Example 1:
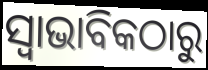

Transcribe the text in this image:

ସ୍ୱାଭାବିକଠାରୁ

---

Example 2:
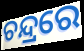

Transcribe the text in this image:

ଚନ୍ଦ୍ରରେ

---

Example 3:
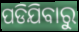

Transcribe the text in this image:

ପଡିଯିବାରୁ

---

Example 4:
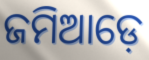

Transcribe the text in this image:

ଜମିଆଡ଼େ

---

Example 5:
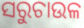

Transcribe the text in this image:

ସରୁଚାଉଳ